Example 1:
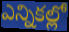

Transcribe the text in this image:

ఎన్నికల్లో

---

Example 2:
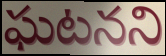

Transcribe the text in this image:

ఘటనని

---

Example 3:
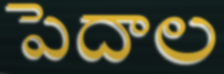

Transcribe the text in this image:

పెదాల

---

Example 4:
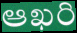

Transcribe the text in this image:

ఆఖరి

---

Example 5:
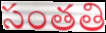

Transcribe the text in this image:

సంతతి